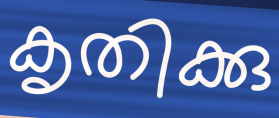
കൃതിക്കു